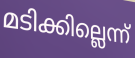
മടിക്കില്ലെന്ന്